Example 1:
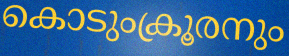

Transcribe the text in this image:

കൊടുംക്രൂരനും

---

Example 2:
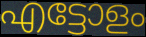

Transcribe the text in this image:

എട്ടോളം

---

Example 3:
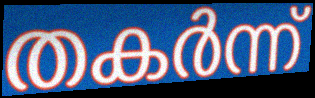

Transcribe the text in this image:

തകർന്ന്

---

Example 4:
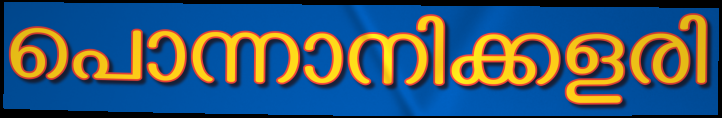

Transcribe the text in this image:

പൊന്നാനിക്കളരി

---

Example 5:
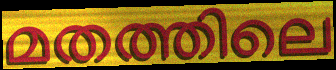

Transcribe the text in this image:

മതത്തിലെ